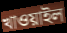
খাওয়াইল